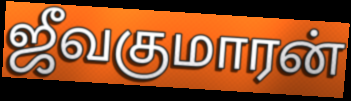
ஜீவகுமாரன்